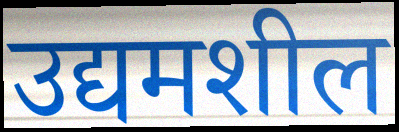
उद्यमशील